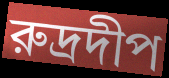
রুদ্রদীপ